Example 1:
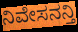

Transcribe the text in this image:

ನಿವೇಸನನ್ತಿ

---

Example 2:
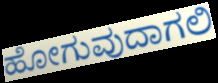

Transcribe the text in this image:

ಹೋಗುವುದಾಗಲಿ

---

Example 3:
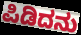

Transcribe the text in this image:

ಪಿಡಿದನು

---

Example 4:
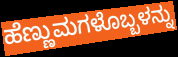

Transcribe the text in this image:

ಹೆಣ್ಣುಮಗಳೊಬ್ಬಳನ್ನು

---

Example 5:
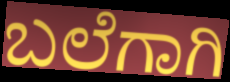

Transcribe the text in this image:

ಬಲೆಗಾಗಿ